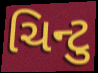
ચિન્ટુ